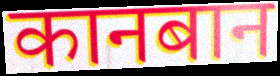
कानबान